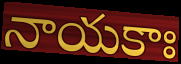
నాయకాః